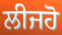
ਲੀਜਹੋ